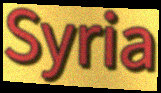
Syria